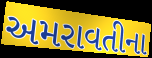
અમરાવતીના